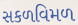
સકળવિમળ